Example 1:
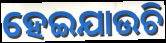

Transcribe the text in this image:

ହେଇଯାଉଚି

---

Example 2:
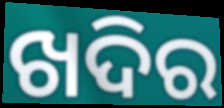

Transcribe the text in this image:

ଖଦିର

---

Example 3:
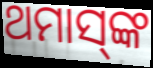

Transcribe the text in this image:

ଥମାସ୍‌ଙ୍କ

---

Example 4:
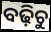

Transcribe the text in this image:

ବଢ଼ିଚୁ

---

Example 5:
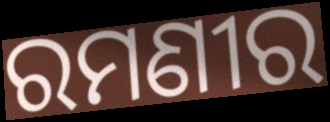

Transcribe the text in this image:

ରମଣୀର